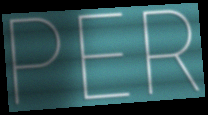
PER